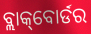
ବ୍ଲାକ୍‌ବୋର୍ଡର